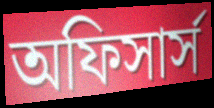
অফিসার্স